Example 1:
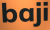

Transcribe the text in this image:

baji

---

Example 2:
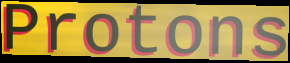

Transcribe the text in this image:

Protons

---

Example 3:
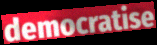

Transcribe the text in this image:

democratise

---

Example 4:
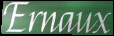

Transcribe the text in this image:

Ernaux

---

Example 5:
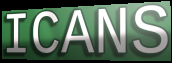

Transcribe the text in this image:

ICANS